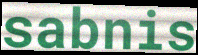
sabnis